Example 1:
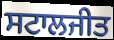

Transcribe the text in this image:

ਸਟਾਲਜੀਤ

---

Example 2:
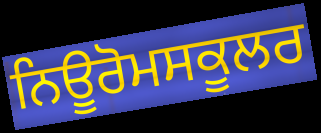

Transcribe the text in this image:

ਨਿਊਰੋਮਸਕੂਲਰ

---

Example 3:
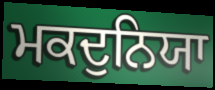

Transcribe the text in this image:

ਮਕਦੁਨਿਯਾ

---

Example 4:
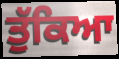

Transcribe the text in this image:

ਤੁੱਕਿਆ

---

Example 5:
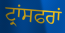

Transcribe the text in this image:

ਟ੍ਰਾਂਸਫਰਾਂ